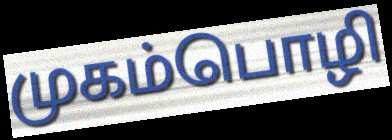
முகம்பொழி